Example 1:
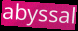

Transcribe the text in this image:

abyssal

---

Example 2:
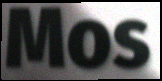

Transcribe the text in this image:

Mos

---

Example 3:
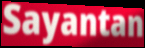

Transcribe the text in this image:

Sayantan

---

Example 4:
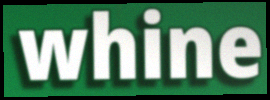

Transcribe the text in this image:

whine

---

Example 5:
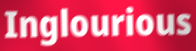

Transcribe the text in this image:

Inglourious